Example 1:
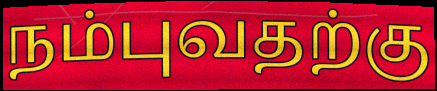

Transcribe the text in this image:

நம்புவதற்கு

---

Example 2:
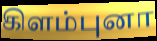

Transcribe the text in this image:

கிளம்புனா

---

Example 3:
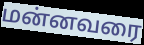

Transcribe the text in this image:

மன்னவரை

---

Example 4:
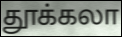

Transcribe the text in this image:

தூக்கலா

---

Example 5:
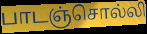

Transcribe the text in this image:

பாடஞ்சொல்லி